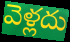
వెళ్లదు